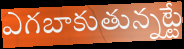
ఎగబాకుతున్నట్టే